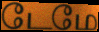
டேமே